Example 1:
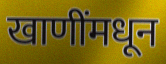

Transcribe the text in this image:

खाणींमधून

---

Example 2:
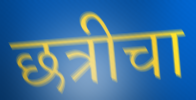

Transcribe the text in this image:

छत्रीचा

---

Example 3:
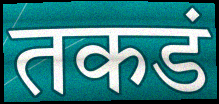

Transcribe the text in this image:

तकडं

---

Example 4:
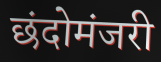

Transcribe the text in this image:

छंदोमंजरी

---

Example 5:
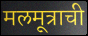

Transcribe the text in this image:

मलमूत्राची